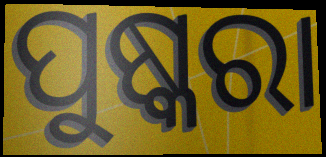
ପୁଷ୍କରା